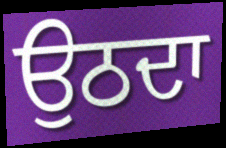
ਉਠਦਾ